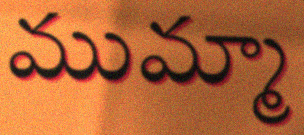
ముమ్మా